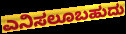
ಎನಿಸಲೂಬಹುದು